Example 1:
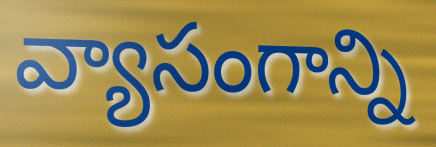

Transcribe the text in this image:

వ్యాసంగాన్ని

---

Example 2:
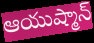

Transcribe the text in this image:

ఆయుష్మాన్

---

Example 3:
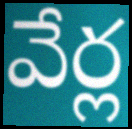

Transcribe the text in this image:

వేర్ల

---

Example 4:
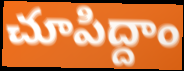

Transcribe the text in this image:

చూపిద్దాం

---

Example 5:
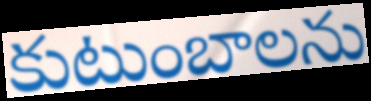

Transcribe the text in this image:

కుటుంబాలను